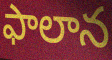
ఫాలాన